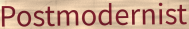
Postmodernist